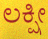
ಲಕ್ಷೀ